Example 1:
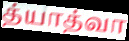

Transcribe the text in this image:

த்யாத்வா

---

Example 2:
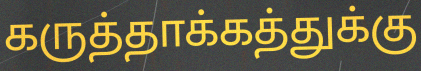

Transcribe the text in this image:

கருத்தாக்கத்துக்கு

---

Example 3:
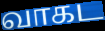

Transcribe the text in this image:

வாகட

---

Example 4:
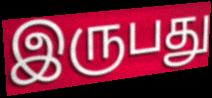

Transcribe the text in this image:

இருபது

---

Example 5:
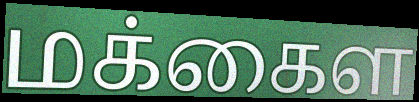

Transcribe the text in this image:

மக்கைள